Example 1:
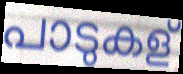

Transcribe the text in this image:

പാടുകള്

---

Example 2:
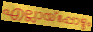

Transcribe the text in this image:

എല്ലായ്പ്പോഴും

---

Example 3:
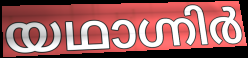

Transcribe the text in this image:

യഥാഗ്നിർ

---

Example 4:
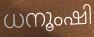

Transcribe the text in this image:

ധനൂംഷി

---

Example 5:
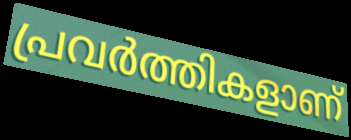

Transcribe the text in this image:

പ്രവർത്തികളാണ്